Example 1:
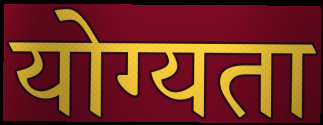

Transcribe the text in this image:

योग्‍यता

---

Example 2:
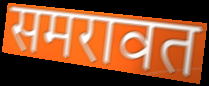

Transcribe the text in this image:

समरावत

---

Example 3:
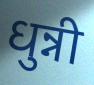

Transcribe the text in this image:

धुन्नी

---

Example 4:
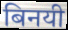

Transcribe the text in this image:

बिनयी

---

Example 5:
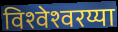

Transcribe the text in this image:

विश्वेश्वरय्या